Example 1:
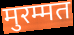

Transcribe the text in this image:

मुरम्मत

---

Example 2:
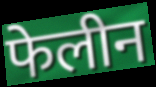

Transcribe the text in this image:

फेलीन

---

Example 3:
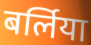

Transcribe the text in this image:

बर्लिया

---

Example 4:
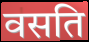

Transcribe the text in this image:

वसति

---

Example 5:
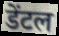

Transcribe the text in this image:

डेंटल